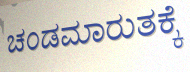
ಚಂಡಮಾರುತಕ್ಕೆ